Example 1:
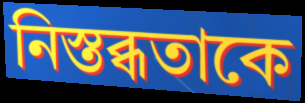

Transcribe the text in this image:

নিস্তব্ধতাকে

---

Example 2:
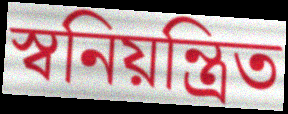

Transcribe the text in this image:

স্বনিয়ন্ত্রিত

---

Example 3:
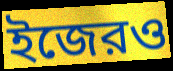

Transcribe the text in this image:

ইজেরও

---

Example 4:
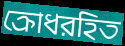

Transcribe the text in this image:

ক্রোধরহিত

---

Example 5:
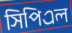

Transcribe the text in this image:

সিপিএল